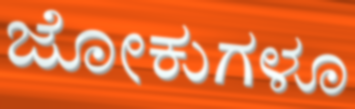
ಜೋಕುಗಳೂ